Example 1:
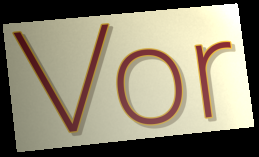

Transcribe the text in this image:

Vor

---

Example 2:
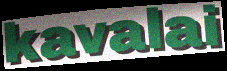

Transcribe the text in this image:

kavalai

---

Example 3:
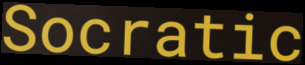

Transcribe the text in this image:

Socratic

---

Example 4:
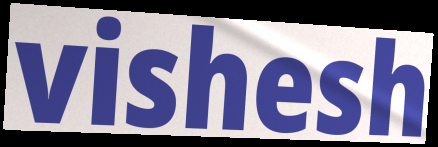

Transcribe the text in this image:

vishesh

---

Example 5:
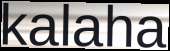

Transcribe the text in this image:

kalaha